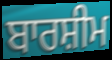
ਬਾਰਸ਼ੀਮ